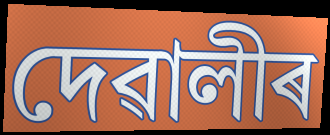
দেৱালীৰ